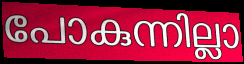
പോകുന്നില്ലാ